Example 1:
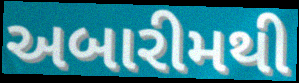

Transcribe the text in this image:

અબારીમથી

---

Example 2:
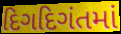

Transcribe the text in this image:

દિગદિગંતમાં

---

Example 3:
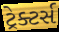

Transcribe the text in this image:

ટ્રેક્ટર્સ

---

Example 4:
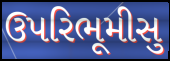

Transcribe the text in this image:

ઉપરિભૂમીસુ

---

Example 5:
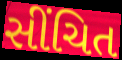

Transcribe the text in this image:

સીંચિત